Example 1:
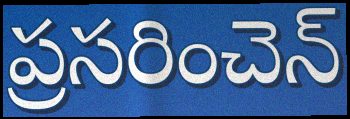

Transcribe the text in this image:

ప్రసరించెన్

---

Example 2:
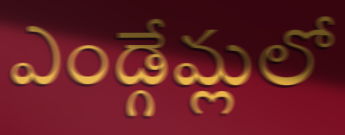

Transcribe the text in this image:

ఎండ్గేమ్లలో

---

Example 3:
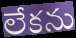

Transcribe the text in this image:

లేకను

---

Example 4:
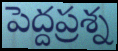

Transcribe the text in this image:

పెద్దప్రశ్న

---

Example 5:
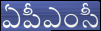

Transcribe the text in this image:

ఏపీఎంసీ